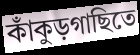
কাঁকুড়গাছিতে